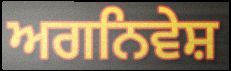
ਅਗਨਿਵੇਸ਼